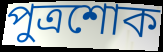
পুত্রশোক